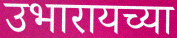
उभारायच्या